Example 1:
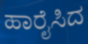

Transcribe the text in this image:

ಹಾರೈಸಿದ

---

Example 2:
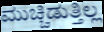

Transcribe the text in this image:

ಮುಚ್ಚಿಡುತ್ತಿಲ್ಲ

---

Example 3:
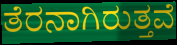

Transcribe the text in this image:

ತೆರನಾಗಿರುತ್ತವೆ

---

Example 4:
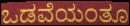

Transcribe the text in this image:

ಒಡವೆಯಂತೂ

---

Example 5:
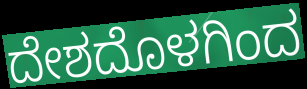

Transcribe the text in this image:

ದೇಶದೊಳಗಿಂದ